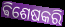
ଵିଶେଷକରି